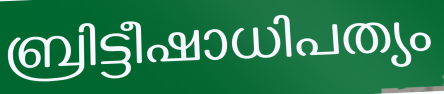
ബ്രിട്ടീഷാധിപത്യം